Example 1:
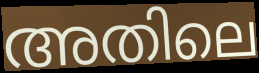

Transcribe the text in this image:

അതിലെ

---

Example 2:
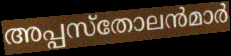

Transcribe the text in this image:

അപ്പസ്തോലൻമാർ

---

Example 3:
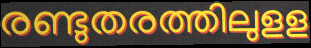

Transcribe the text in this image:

രണ്ടുതരത്തിലുളള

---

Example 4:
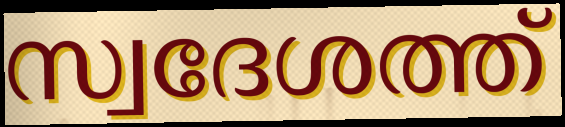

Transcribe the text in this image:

സ്വദേശത്ത്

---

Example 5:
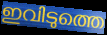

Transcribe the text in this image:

ഇവിടുത്തെ